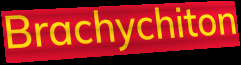
Brachychiton